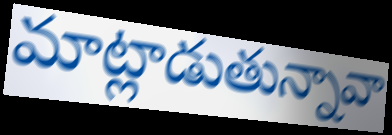
మాట్లాడుతున్నావా